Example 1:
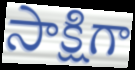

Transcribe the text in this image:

సాక్షిగా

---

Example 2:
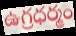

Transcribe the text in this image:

ఉగ్రధర్మం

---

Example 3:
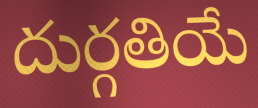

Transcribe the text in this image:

దుర్గతియే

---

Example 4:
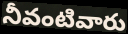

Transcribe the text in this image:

నీవంటివారు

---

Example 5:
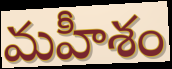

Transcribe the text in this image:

మహీశం